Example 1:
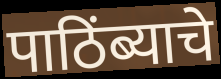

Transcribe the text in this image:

पाठिंब्याचे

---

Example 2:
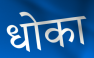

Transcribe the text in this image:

धोका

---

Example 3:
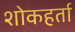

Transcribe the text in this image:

शोकहर्ता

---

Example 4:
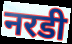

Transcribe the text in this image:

नरडी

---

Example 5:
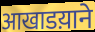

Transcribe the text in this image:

आखाडय़ाने